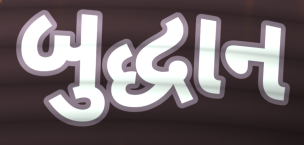
બુદ્ધાન